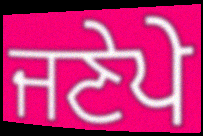
ਜਣੇਪੇ